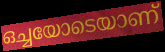
ഒച്ചയോടെയാണ്